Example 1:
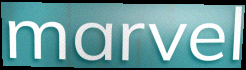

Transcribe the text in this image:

marvel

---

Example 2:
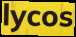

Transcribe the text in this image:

lycos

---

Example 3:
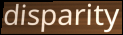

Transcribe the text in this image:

disparity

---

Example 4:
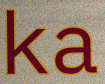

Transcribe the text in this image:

ka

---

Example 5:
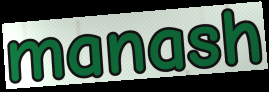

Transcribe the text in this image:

manash